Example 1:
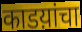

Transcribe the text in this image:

काडय़ांचा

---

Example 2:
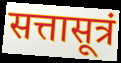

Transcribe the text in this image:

सत्तासूत्रं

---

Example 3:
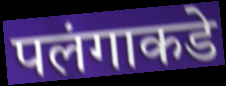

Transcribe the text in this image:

पलंगाकडे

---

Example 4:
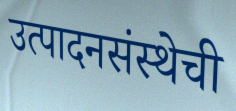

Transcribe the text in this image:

उत्पादनसंस्थेची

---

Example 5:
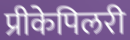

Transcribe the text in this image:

प्रीकेपिलरी